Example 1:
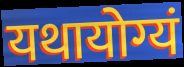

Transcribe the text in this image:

यथायोग्यं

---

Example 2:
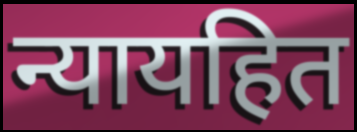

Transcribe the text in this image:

न्यायहित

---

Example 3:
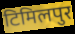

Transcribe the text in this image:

टिमिलपुर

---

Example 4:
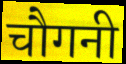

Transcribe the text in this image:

चौगनी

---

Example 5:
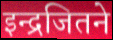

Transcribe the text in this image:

इन्द्रजितने